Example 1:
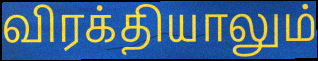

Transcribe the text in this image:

விரக்தியாலும்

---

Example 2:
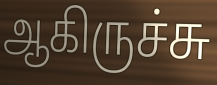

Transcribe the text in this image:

ஆகிருச்சு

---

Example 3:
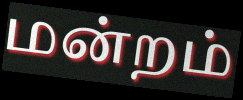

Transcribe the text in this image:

மன்றம்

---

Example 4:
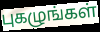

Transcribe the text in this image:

புகழுங்கள்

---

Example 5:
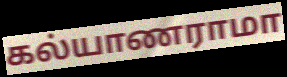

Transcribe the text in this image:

கல்யாணராமா